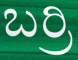
ಬರ್ರಿ